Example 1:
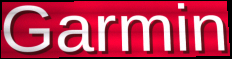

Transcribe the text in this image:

Garmin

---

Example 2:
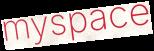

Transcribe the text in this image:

myspace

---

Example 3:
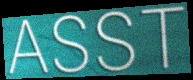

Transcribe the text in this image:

ASST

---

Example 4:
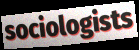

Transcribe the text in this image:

sociologists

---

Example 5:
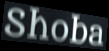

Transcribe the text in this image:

Shoba